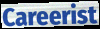
Careerist